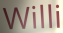
Willi